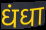
धंधा